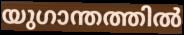
യുഗാന്തത്തിൽ